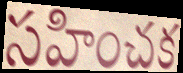
సహించక